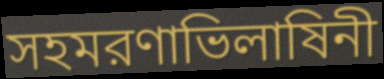
সহমরণাভিলাষিনী